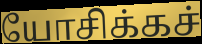
யோசிக்கச்